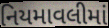
નિયમાવલીમાં